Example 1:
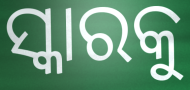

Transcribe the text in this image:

ସ୍କାରକୁ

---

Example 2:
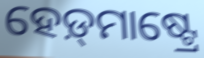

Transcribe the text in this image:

ହେଡ଼୍‌ମାଷ୍ଟ୍ରେ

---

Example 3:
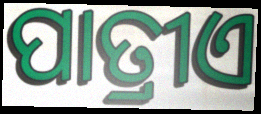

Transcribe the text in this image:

ପାତ୍ରୀଏ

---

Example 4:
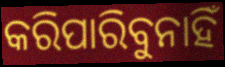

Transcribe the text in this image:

କରିପାରିବୁନାହିଁ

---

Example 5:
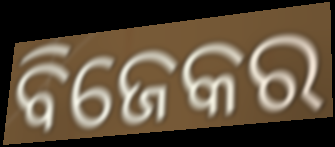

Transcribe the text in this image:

ବିଜେକର